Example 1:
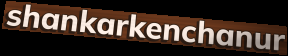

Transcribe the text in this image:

shankarkenchanur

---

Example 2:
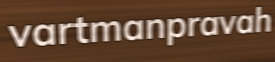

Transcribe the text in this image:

vartmanpravah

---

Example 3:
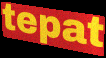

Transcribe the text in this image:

tepat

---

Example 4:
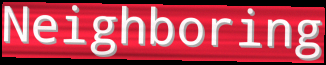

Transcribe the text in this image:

Neighboring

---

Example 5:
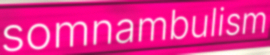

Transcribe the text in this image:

somnambulism